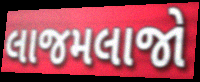
લાજમલાજો